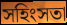
সহিংসতা